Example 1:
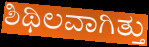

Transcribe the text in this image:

ಶಿಥಿಲವಾಗಿತ್ತು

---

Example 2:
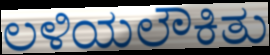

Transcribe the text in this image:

ಲಳಿಯಲೌಕಿತು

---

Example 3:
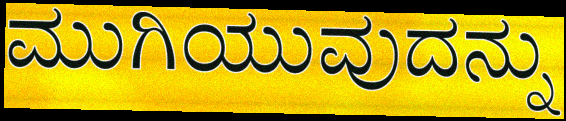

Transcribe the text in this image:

ಮುಗಿಯುವುದನ್ನು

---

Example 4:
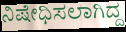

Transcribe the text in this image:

ನಿಷೇಧಿಸಲಾಗಿದ್ದ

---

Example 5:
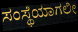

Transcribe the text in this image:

ಸಂಸ್ಥೆಯಾಗಲೀ